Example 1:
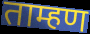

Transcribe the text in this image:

ताम्हण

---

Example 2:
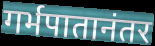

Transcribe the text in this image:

गर्भपातानंतर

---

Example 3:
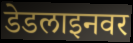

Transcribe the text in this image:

डेडलाइनवर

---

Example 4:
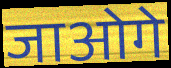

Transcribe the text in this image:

जाओगे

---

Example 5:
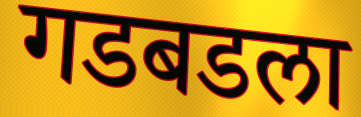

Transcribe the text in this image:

गडबडला